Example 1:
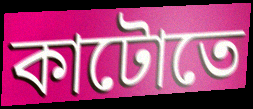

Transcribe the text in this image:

কাটোতে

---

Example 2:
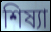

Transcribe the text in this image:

শিষ্যা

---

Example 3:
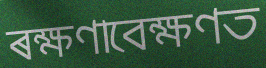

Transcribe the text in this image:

ৰক্ষণাবেক্ষণত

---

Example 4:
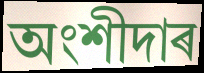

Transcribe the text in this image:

অংশীদাৰ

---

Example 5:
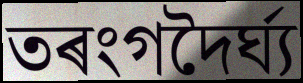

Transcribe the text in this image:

তৰংগদৈৰ্ঘ্য